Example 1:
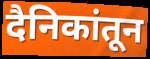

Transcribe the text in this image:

दैनिकांतून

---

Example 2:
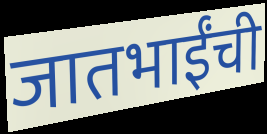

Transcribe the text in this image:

जातभाईंची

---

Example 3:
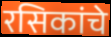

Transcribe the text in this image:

रसिकांचे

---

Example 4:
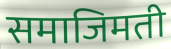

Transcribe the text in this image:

समाजिमती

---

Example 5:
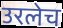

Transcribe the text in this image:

उरलेच